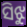
ସିଝୁ